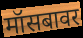
मॉसबावर